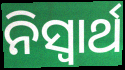
ନିସ୍ୱାର୍ଥ